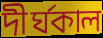
দীৰ্ঘকাল